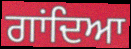
ਗਾਂਦਿਆ